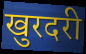
खुरदरी